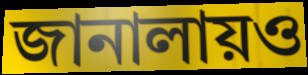
জানালায়ও